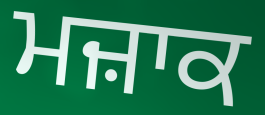
ਮਜ਼ਾਕ